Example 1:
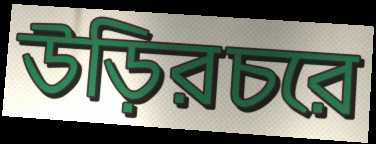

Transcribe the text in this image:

উড়িরচরে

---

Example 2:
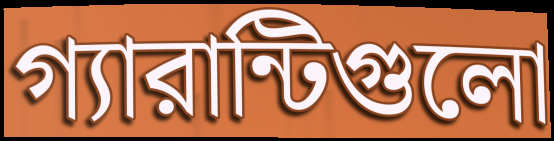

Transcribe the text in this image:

গ্যারান্টিগুলো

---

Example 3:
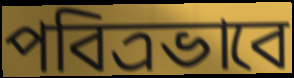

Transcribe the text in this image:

পবিত্রভাবে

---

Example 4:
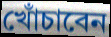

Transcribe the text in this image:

খোঁচাবেন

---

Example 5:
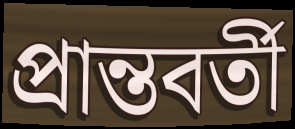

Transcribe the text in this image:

প্রান্তবর্তী